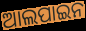
ଆଲପାଇନ